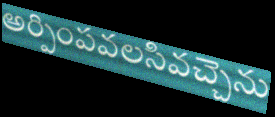
అర్పింపవలసివచ్చెను